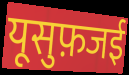
यूसुफ़जई